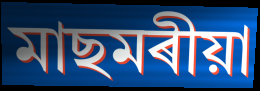
মাছমৰীয়া